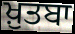
ਖ਼ੁਤਬਾ